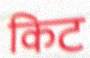
किट